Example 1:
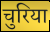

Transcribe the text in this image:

चुरिया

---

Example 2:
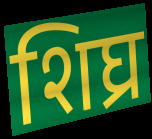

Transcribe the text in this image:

शिघ्र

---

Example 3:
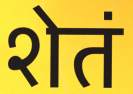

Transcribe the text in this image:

शेतं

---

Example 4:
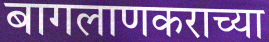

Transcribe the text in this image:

बागलाणकराच्या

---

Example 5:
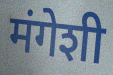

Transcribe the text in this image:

मंगेशी